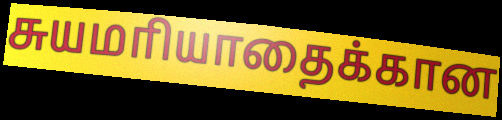
சுயமரியாதைக்கான